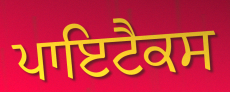
ਪਾਇਟੈਕਸ